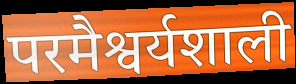
परमैश्वर्यशाली